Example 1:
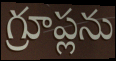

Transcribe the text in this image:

గ్రూప్లను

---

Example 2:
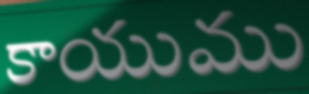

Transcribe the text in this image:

కాయుము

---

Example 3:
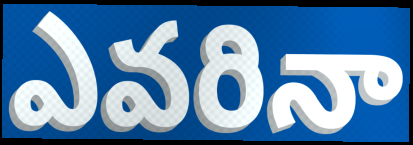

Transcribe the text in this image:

ఎవరినా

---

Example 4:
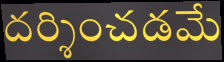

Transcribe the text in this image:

దర్శించడమే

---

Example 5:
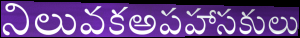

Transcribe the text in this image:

నిలువకఅపహాసకులు